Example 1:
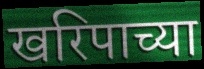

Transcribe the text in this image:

खरिपाच्या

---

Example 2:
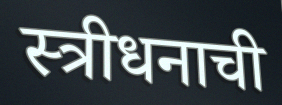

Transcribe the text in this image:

स्त्रीधनाची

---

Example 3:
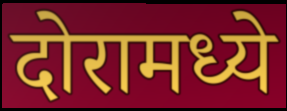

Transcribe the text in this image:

दोरामध्ये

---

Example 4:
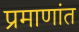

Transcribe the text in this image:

प्रमाणांत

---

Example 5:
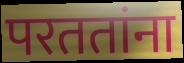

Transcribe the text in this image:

परततांना